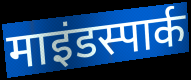
माइंडस्पार्क